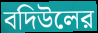
বদিউলের